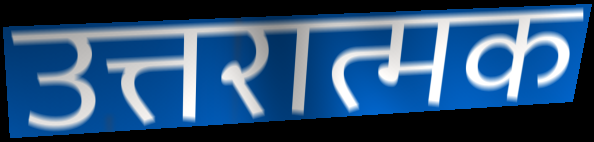
उत्तरात्मक